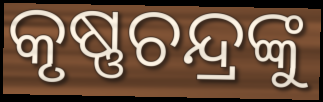
କୃଷ୍ଣଚନ୍ଦ୍ରଙ୍କୁ